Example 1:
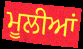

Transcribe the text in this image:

ਮੂਲੀਆਂ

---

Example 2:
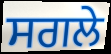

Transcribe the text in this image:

ਸਗਲੇ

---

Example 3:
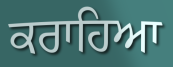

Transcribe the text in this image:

ਕਰਾਹਿਆ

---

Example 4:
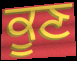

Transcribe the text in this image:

ਕੂਣ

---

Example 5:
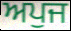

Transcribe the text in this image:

ਅਪੁਜ